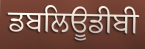
ਡਬਲਿਊਡੀਬੀ